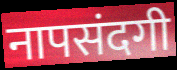
नापसंदगी